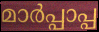
മാർപ്പാപ്പ